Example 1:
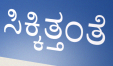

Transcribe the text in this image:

ಸಿಕ್ಕಿತ್ತಂತೆ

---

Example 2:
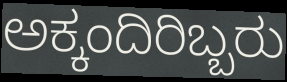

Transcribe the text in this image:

ಅಕ್ಕಂದಿರಿಬ್ಬರು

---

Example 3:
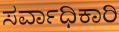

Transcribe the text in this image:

ಸರ್ವಾಧಿಕಾರಿ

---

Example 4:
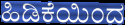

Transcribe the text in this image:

ಹಿಡಿಕೆಯಿಂದ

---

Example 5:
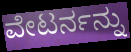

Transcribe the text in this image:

ವೇಟರ್ನನ್ನು